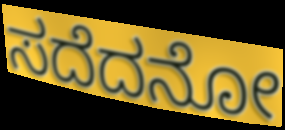
ಸದೆದನೋ